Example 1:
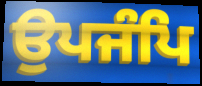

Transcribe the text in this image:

ਉਪਜੰਪਿ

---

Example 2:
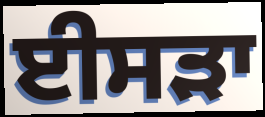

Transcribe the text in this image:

ਈਸੜਾ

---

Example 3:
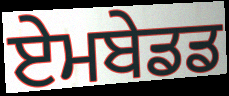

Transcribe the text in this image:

ਏਮਬੇਡਡ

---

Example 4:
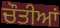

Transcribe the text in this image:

ਚੌਤੀਆਂ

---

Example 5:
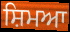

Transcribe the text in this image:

ਸ਼ਿਮਆ